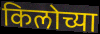
किलोच्या